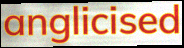
anglicised